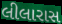
લીલારાસ